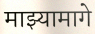
माझ्यामागे